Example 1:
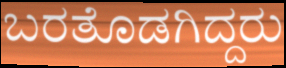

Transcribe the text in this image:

ಬರತೊಡಗಿದ್ದರು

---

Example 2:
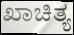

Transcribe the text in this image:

ಖಾಚಿತ್ಯ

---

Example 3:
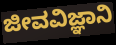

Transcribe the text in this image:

ಜೀವವಿಜ್ಞಾನಿ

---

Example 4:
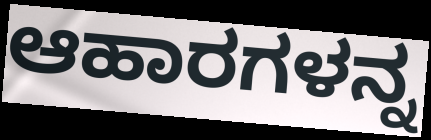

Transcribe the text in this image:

ಆಹಾರಗಳನ್ನ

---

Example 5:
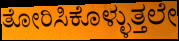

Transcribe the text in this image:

ತೋರಿಸಿಕೊಳ್ಳುತ್ತಲೇ